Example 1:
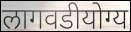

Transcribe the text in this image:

लागवडीयोग्य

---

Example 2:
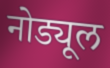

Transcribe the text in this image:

नोड्यूल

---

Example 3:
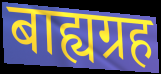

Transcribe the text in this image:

बाह्यग्रह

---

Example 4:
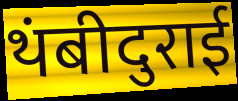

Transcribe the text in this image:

थंबीदुराई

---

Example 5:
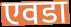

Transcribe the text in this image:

एवडा